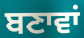
ਬਣਾਵਾਂ